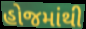
હોજમાંથી